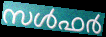
സൾഫർ